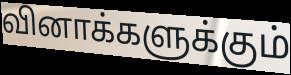
வினாக்களுக்கும்